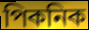
পিকনিক